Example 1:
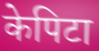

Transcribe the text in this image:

केपिटा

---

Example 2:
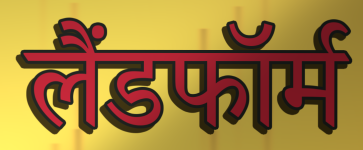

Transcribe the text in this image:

लैंडफॉर्म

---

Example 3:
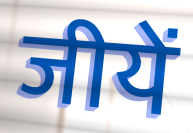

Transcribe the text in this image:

जीयें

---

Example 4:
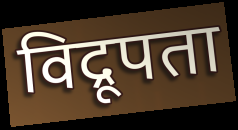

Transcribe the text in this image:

विद्रूपता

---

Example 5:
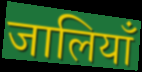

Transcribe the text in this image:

जालियाँ